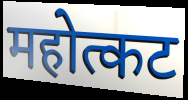
महोत्कट